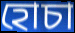
হোচা